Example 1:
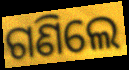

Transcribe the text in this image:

ଗଣିଲେ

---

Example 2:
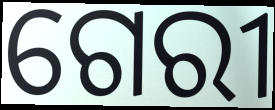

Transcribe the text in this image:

ଗେରୀ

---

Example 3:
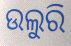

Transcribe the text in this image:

ଉଲୁରି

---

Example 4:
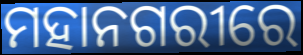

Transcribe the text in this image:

ମହାନଗରୀରେ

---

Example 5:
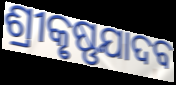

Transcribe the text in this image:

ଶ୍ରୀକୃଷ୍ଣଯାଦବ